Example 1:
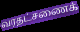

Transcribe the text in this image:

வரதட்சணைக்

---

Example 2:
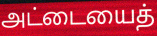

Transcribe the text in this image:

அட்டையைத்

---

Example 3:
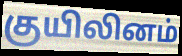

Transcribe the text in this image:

குயிலினம்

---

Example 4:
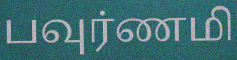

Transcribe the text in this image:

பவுர்ணமி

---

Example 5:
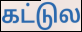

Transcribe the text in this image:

கட்டுல